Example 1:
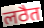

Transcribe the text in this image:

लठैत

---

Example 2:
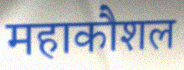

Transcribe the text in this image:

महाकौशल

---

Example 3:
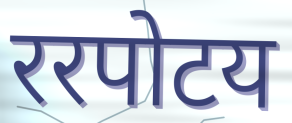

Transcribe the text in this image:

ररपोटय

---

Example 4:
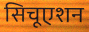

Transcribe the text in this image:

सिचूएशन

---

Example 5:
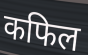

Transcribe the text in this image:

कफिल